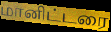
மானிட்டரை